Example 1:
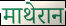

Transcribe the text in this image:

माथेरान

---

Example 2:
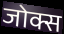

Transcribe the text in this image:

जोक्स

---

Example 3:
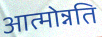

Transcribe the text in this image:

आत्मोन्नति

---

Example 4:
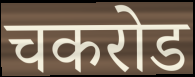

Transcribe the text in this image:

चकरोड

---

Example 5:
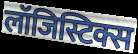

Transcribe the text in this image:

लॉजिस्टिक्स